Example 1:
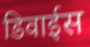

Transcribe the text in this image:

डिवाईस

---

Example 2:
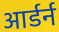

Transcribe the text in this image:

आर्डर्न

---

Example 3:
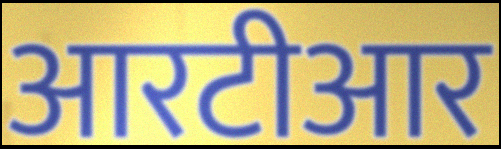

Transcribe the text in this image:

आरटीआर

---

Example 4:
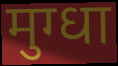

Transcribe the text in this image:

मुग्धा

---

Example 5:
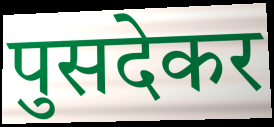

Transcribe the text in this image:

पुसदेकर